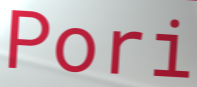
Pori